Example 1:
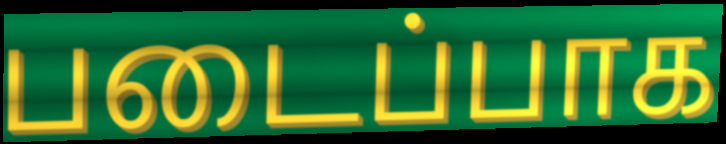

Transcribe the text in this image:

படைப்பாக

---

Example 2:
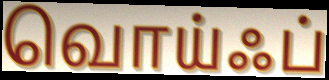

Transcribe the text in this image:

வொய்ஃப்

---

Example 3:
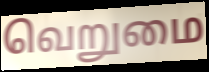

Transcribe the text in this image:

வெறுமை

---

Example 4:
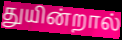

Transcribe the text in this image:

துயின்றால்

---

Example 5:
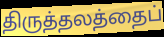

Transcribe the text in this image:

திருத்தலத்தைப்